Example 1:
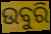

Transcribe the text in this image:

ଉବୁରି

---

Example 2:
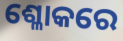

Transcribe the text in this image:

ଶ୍ଳୋକରେ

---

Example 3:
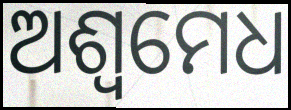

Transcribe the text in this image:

ଅଶ୍ଵମେଧ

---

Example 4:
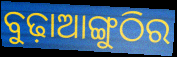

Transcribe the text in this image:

ବୁଢ଼ାଆଙ୍ଗୁଠିର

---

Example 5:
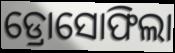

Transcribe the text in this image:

ଡ୍ରୋସୋଫିଲା